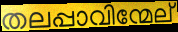
തലപ്പാവിന്മേല്